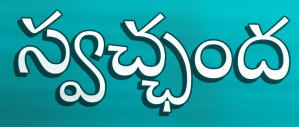
స్వచ్ఛంద